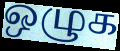
ஒழுக